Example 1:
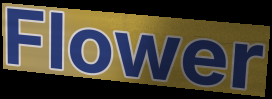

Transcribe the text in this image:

Flower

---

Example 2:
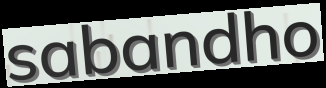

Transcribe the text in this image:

sabandho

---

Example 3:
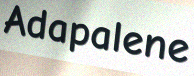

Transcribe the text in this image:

Adapalene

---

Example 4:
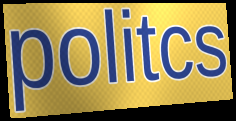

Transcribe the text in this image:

politcs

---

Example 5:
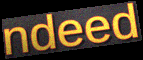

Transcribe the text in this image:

ndeed